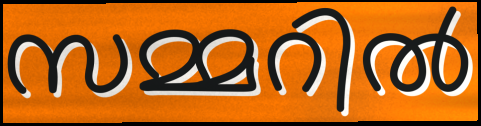
സമ്മറിൽ